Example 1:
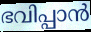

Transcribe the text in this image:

ഭവിപ്പാൻ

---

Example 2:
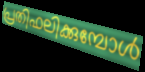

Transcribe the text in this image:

പ്രതിഫലിക്കുമ്പോൾ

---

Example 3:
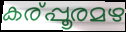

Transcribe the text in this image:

കര്പ്പൂരമഴ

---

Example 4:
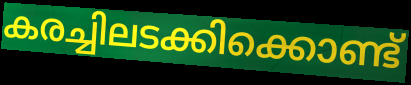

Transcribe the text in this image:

കരച്ചിലടക്കിക്കൊണ്ട്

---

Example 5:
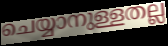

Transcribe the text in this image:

ചെയ്യാനുള്ളതല്ല